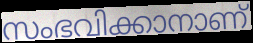
സംഭവിക്കാനാണ്